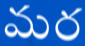
మర